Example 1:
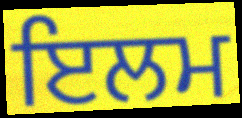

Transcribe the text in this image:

ਇਲਮ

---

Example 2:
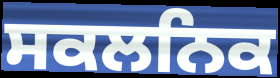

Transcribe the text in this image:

ਸਕਲਨਿਕ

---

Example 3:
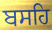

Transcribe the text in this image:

ਬਸਹਿ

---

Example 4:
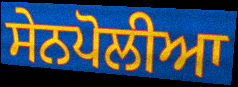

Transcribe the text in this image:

ਸੇਨਪੋਲੀਆ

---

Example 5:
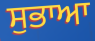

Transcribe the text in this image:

ਸੁਭਾਆ